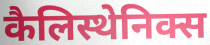
कैलिस्थेनिक्स